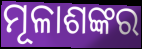
ମୂଳାଶଙ୍କର